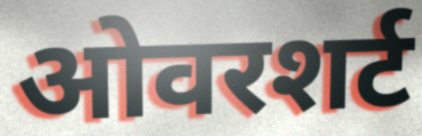
ओवरशर्ट